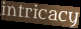
intricacy